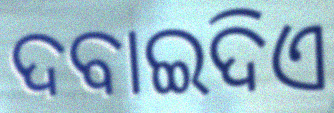
ଦବାଇଦିଏ